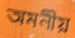
অমনীয়